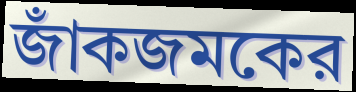
জাঁকজমকের